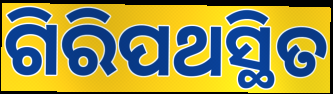
ଗିରିପଥସ୍ଥିତ